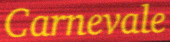
Carnevale